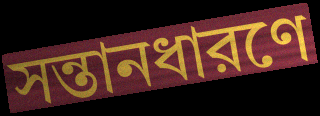
সন্তানধারণে